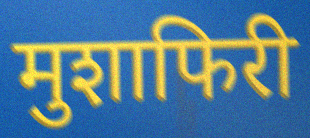
मुशाफिरी